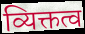
व्यिक्तत्व